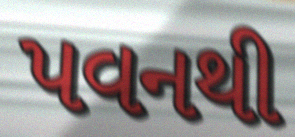
પવનથી